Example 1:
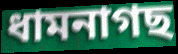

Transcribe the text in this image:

ধামনাগছ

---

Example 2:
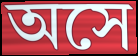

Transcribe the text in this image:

অসে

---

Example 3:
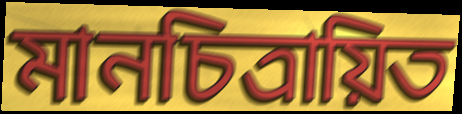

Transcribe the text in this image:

মানচিত্রায়িত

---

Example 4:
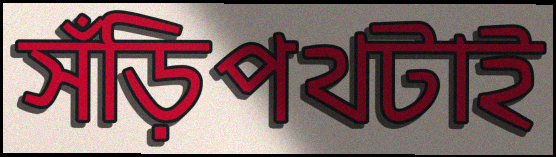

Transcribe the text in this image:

সঁড়িপথটাই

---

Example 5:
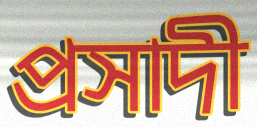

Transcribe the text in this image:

প্রসাদী